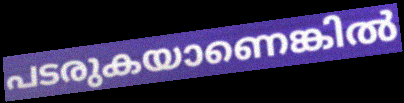
പടരുകയാണെങ്കിൽ